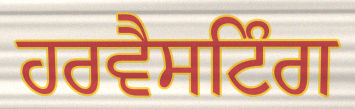
ਹਰਵੈਸਟਿੰਗ